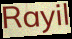
Rayil